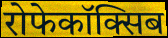
रोफेकॉक्सिब